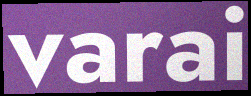
varai